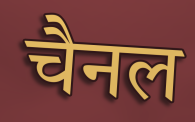
चैनल